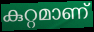
കുറ്റമാണ്